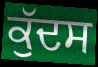
ਕੁੱਦਸ